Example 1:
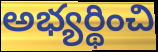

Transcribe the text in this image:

అభ్యర్థించి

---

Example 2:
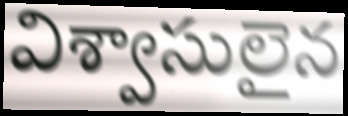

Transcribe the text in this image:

విశ్వాసులైన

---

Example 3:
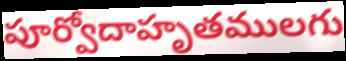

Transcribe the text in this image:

పూర్వోదాహృతములగు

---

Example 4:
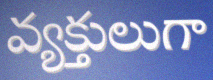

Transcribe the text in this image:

వ్యక్తులుగా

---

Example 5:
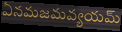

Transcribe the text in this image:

ఏనమజమవ్యయమ్